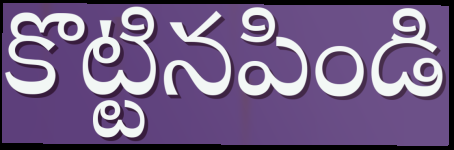
కొట్టినపిండి